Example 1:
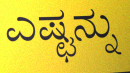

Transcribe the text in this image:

ಎಷ್ಟನ್ನು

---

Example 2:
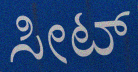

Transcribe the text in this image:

ಸೀಟ್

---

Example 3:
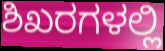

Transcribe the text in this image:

ಶಿಖರಗಳಲ್ಲಿ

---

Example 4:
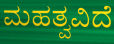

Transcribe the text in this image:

ಮಹತ್ವವಿದೆ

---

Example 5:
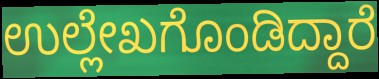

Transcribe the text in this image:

ಉಲ್ಲೇಖಗೊಂಡಿದ್ದಾರೆ